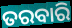
ତରବାରି